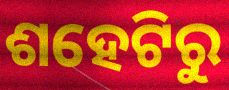
ଶହେଟିରୁ